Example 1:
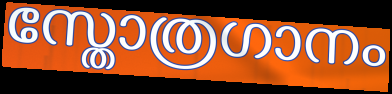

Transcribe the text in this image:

സ്തോത്രഗാനം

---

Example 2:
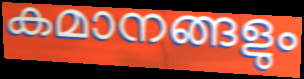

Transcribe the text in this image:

കമാനങ്ങളും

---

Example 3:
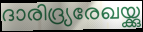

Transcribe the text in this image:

ദാരിദ്ര്യരേഖയ്ക്കു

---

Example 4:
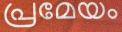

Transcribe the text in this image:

പ്രമേയം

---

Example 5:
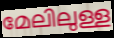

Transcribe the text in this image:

മേലിലുള്ള